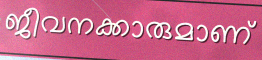
ജീവനക്കാരുമാണ്